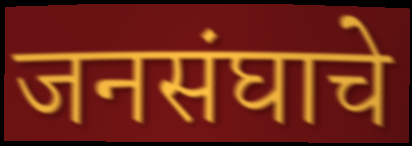
जनसंघाचे